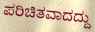
ಪರಿಚಿತವಾದದ್ದು